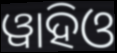
ୱାହିଓ